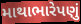
માથાભારેપણું